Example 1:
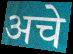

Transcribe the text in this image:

अचे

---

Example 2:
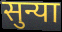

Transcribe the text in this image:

सुन्या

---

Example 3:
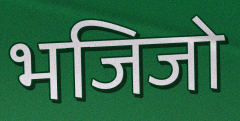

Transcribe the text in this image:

भजिजो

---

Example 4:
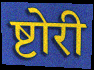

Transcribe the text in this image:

ष्टोरी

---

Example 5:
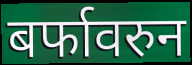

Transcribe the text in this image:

बर्फावरुन